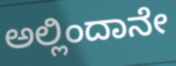
ಅಲ್ಲಿಂದಾನೇ